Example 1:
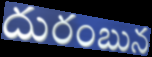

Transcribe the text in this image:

దురంబున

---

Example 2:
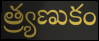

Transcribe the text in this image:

త్ర్యణుకం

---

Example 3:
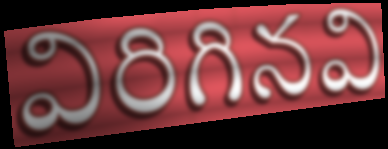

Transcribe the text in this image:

విరిగినవి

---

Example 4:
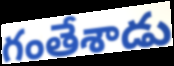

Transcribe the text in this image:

గంతేశాడు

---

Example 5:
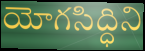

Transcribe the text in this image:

యోగసిద్ధిని